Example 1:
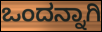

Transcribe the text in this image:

ಒಂದನ್ನಾಗಿ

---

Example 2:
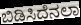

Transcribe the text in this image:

ಬಿಡಿಸಿದೆನಲಾ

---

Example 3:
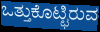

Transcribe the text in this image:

ಒತ್ತುಕೊಟ್ಟಿರುವ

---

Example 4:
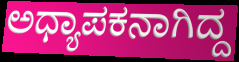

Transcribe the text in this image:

ಅಧ್ಯಾಪಕನಾಗಿದ್ದ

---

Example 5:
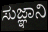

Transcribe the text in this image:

ಸುಜ್ಞಾನಿ